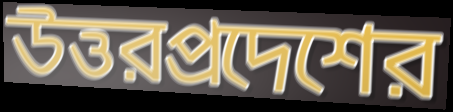
উত্তরপ্রদেশের